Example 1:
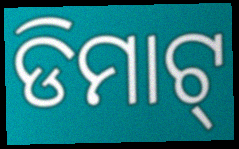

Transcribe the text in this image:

ଡିମାଟ୍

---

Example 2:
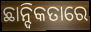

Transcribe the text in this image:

ଛାନ୍ଦିକତାରେ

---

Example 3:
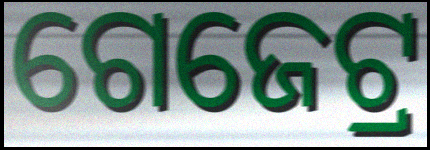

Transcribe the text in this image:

ଗେଜେଟ୍ର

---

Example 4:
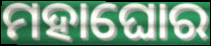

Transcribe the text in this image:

ମହାଘୋର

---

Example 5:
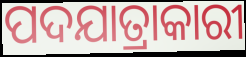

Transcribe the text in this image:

ପଦଯାତ୍ରାକାରୀ